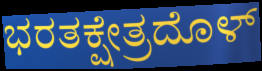
ಭರತಕ್ಷೇತ್ರದೊಳ್